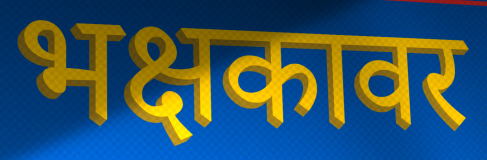
भक्षकावर